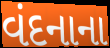
વંદનાના